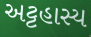
અટ્ટહાસ્ય